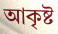
আকৃষ্ট